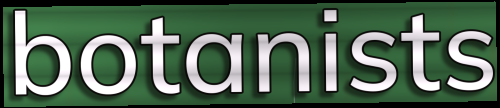
botanists